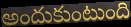
అందుకుంటుంది